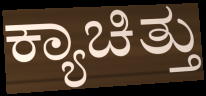
ಕ್ಯಾಚಿತ್ತು